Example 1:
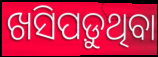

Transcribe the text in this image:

ଖସିପଡ଼ୁଥିବା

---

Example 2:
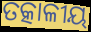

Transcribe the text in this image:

ତତ୍କାଳୀୟ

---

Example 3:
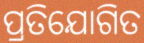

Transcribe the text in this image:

ପ୍ରତିଯୋଗିତ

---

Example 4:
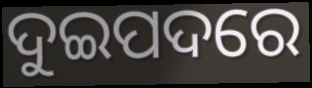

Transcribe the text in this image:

ଦୁଇପଦରେ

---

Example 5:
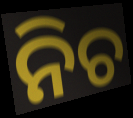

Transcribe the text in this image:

ନିଚ